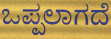
ಒಪ್ಪಲಾಗದೆ